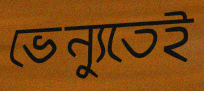
ভেন্যুতেই